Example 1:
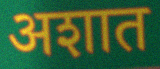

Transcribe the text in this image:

अशात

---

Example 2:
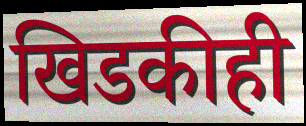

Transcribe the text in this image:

खिडकीही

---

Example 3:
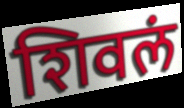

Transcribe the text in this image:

शिवलं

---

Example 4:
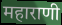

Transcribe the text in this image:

महाराणी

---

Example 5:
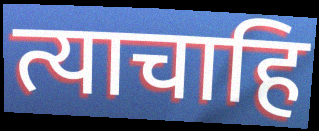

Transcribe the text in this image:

त्याचाहि